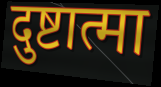
दुष्टात्मा